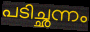
പടിച്ഛന്നം